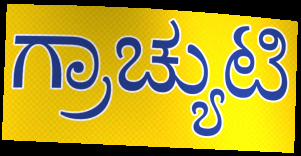
ಗ್ರಾಚ್ಯುಟಿ